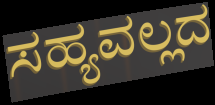
ಸಹ್ಯವಲ್ಲದ